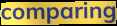
comparing